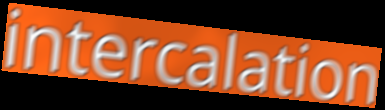
intercalation